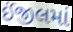
ઈંજીલમાં